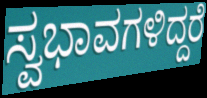
ಸ್ವಭಾವಗಳಿದ್ದರೆ